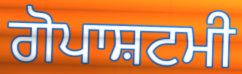
ਗੋਪਾਸ਼ਟਮੀ